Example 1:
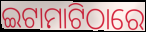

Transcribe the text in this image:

ଇଟାମାଟିଠାରେ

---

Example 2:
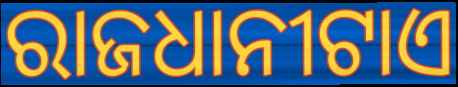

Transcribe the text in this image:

ରାଜଧାନୀଟାଏ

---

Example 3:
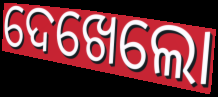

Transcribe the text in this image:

ଦେଖେଲୋ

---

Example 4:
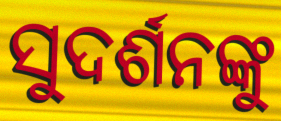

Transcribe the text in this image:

ସୁଦର୍ଶନଙ୍କୁ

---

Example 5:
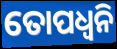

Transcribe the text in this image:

ତୋପଧ୍ୱନି